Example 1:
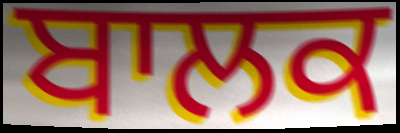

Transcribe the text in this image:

ਬਾਲਕ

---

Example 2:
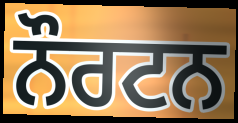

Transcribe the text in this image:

ਨੌਰਟਨ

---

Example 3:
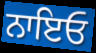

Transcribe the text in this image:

ਨਾਇਓ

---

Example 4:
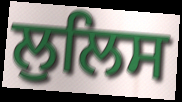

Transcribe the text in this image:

ਲੁਲਿਸ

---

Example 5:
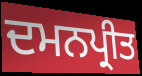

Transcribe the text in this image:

ਦਮਨਪ੍ਰੀਤ